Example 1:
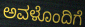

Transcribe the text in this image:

ಅವಳೊಂದಿಗೆ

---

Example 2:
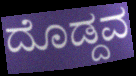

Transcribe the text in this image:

ದೊಡ್ದವ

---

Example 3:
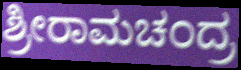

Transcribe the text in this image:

ಶ್ರೀರಾಮಚಂದ್ರ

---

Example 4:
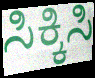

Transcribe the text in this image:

ಸಿಕ್ಕಿಸಿ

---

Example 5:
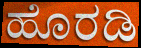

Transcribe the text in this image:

ಹೊರಡಿ